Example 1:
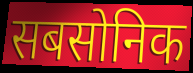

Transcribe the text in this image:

सबसोनिक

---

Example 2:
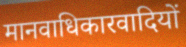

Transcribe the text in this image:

मानवाधिकारवादियों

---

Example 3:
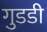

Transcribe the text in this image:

गुडडी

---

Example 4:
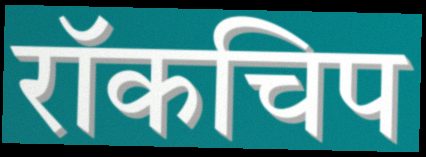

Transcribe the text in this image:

रॉकचिप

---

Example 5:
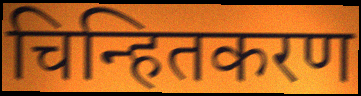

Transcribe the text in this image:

चिन्हितकरण